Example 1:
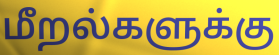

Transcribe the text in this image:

மீறல்களுக்கு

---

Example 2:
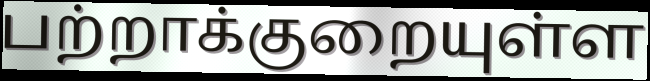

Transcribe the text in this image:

பற்றாக்குறையுள்ள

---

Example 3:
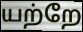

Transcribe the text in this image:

யற்றே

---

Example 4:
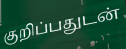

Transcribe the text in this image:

குறிப்பதுடன்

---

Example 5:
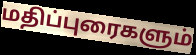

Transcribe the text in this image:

மதிப்புரைகளும்